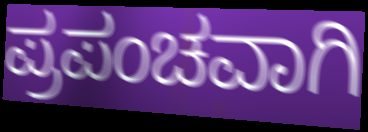
ಪ್ರಪಂಚವಾಗಿ